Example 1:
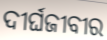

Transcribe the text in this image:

ଦୀର୍ଘଜୀବୀର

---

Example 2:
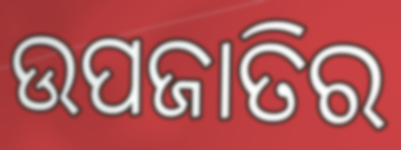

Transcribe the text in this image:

ଉପଜାତିର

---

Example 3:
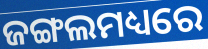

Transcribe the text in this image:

ଜଙ୍ଗଲମଧ୍ୟରେ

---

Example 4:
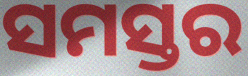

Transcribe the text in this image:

ସମସ୍ତର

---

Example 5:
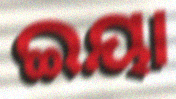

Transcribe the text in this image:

ଇୟା